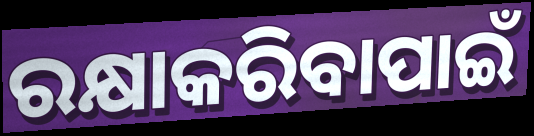
ରକ୍ଷାକରିବାପାଇଁ